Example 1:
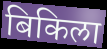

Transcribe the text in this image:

बिकिला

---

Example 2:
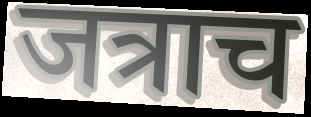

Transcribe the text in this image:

जत्राच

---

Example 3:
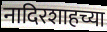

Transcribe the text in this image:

नादिरशाहच्या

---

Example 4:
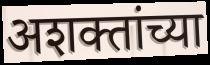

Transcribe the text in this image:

अशक्तांच्या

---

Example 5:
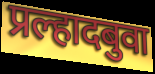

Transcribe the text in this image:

प्रल्हादबुवा